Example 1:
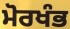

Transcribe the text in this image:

ਮੋਰਖੰਭ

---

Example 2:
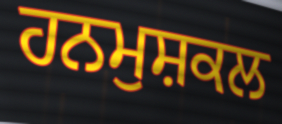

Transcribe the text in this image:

ਹਨਮੁਸ਼ਕਲ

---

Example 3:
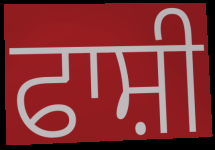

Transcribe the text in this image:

ਫਾਸ਼ੀ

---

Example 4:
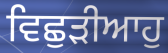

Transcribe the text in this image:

ਵਿਛੁੜੀਆਹੁ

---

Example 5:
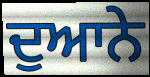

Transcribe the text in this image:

ਦੁਆਨੇ